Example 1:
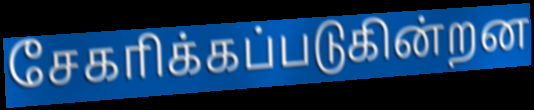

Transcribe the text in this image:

சேகரிக்கப்படுகின்றன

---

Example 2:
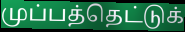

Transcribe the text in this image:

முப்பத்தெட்டுக்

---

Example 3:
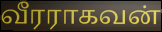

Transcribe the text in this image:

வீரராகவன்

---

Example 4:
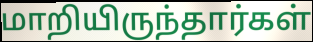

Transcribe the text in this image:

மாறியிருந்தார்கள்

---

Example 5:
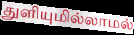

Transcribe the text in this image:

துளியுமில்லாமல்